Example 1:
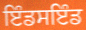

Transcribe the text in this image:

ਇੰਡਸਇੰਡ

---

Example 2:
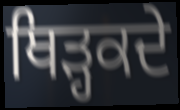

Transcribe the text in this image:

ਥਿੜ੍ਹਕਦੇ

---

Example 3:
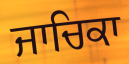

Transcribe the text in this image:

ਜਾਚਿਕਾ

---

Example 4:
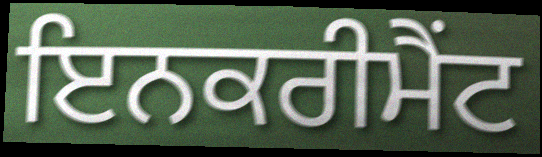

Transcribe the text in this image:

ਇਨਕਰੀਮੈਂਟ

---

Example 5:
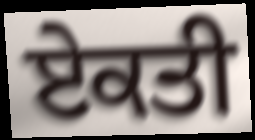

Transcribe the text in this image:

ਏਕਤੀ